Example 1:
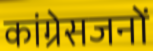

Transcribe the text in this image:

कांग्रेसजनों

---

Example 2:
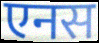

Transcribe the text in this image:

एनस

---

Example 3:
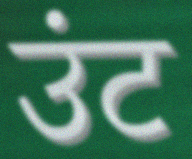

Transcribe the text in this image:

उंट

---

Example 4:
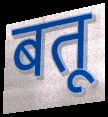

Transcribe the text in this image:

बतू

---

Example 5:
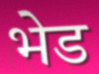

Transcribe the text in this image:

भेड